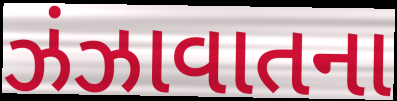
ઝંઝાવાતના